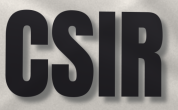
CSIR